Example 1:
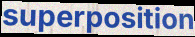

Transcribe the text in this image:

superposition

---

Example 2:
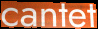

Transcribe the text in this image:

cantet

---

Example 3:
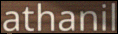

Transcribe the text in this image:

athanil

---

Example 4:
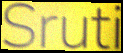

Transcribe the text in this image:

Sruti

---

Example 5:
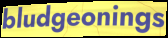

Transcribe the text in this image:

bludgeonings